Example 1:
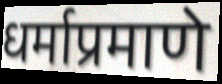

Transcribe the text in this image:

धर्माप्रमाणे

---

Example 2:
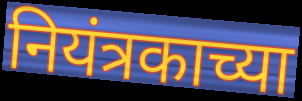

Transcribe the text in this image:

नियंत्रकाच्या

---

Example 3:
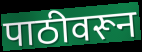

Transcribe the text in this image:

पाठीवरून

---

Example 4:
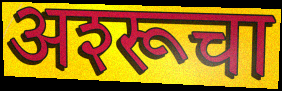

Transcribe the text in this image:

अश्रूचा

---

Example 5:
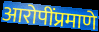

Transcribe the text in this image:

आरोपींप्रमाणे